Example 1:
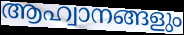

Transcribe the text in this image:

ആഹ്വാനങ്ങളും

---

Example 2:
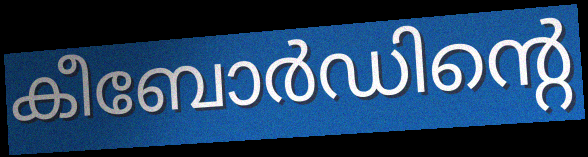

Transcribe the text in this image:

കീബോർഡിന്റെ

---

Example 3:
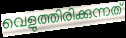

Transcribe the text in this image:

വെളുത്തിരിക്കുന്നത്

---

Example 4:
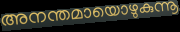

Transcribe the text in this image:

അനന്തമായൊഴുകുന്നൂ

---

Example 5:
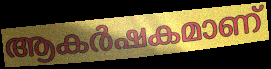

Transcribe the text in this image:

ആകർഷകമാണ്